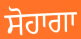
ਸੋਹਾਗਾ